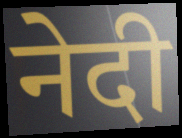
नेदी